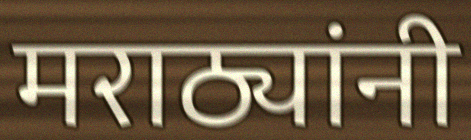
मराठ्यांनी